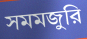
সমমজুরি